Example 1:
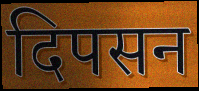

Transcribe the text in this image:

दिपसन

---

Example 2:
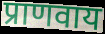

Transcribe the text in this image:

प्राणवाय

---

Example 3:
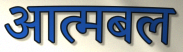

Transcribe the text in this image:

आत्मबल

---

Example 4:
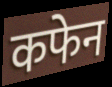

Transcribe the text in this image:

कफेन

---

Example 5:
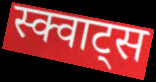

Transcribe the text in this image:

स्क्वाट्स